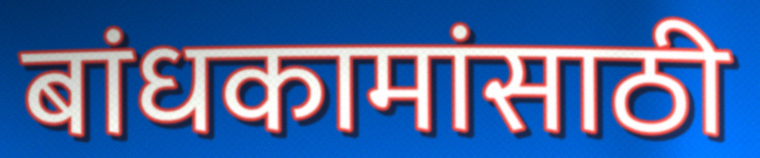
बांधकामांसाठी